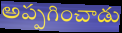
అప్పగించాడు